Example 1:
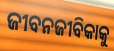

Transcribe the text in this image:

ଜୀବନଜୀବିକାକୁ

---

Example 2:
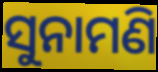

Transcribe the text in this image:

ସୁନାମଣି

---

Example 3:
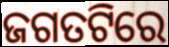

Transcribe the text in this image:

ଜଗତଟିରେ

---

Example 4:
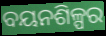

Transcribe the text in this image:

ବୟନଶିଳ୍ପର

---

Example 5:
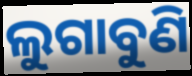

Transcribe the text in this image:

ଲୁଗାବୁଣି